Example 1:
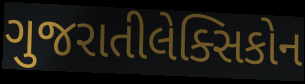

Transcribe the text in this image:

ગુજરાતીલેક્સિકોન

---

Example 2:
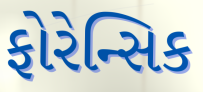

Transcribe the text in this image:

ફોરેન્સિક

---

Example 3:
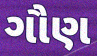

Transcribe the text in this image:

ગૌણ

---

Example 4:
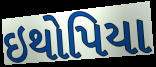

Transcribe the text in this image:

ઇથોપિયા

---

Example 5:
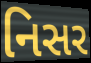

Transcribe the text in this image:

નિસર